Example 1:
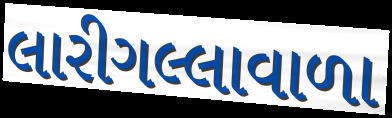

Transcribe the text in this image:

લારીગલ્લાવાળા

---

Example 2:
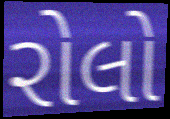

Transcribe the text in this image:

રોલો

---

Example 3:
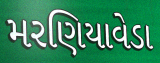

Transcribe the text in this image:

મરણિયાવેડા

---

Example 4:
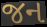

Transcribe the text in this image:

જન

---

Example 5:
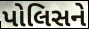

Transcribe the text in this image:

પોલિસને